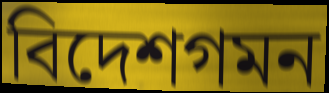
বিদেশগমন